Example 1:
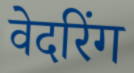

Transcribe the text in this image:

वेदरिंग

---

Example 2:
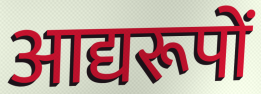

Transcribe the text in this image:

आद्यरूपों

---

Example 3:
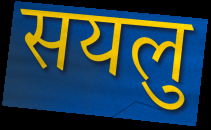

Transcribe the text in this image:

सयलु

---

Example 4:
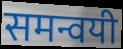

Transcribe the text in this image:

समन्वयी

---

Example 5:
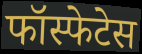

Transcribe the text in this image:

फॉस्फेटेस